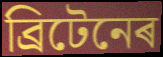
ব্ৰিটেনেৰ